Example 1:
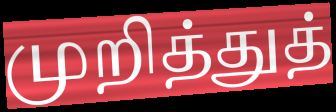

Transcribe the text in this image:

முறித்துத்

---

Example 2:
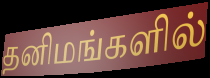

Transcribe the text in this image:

தனிமங்களில்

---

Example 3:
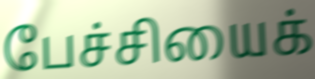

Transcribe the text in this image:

பேச்சியைக்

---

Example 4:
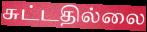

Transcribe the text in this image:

சுட்டதில்லை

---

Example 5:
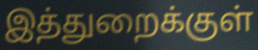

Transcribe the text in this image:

இத்துறைக்குள்